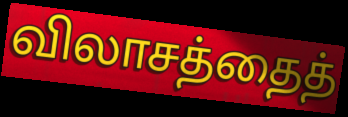
விலாசத்தைத்